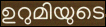
ഉറുമിയുടെ